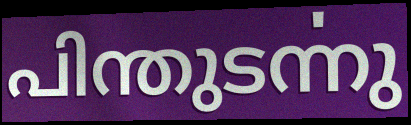
പിന്തുടൎന്നു